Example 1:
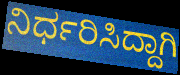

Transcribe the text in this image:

ನಿರ್ಧರಿಸಿದ್ದಾಗಿ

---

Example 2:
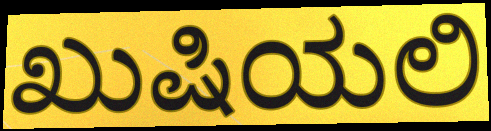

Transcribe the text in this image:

ಖುಷಿಯಲಿ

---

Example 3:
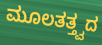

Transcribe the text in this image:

ಮೂಲತತ್ತ್ವದ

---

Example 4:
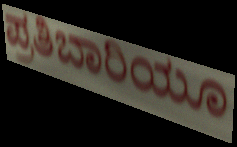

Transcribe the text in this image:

ಪ್ರತಿಬಾರಿಯೂ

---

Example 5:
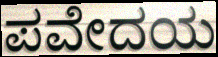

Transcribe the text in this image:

ಪವೇದಯ